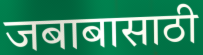
जबाबासाठी